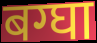
बग्घा